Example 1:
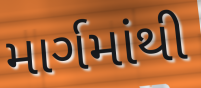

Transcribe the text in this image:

માર્ગમાંથી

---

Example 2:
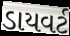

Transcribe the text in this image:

ડાયવર્ટ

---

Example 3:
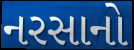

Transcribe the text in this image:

નરસાનો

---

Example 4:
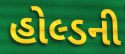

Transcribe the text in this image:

હોલ્ડની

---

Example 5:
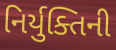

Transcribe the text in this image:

નિર્યુક્તિની